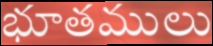
భూతములు